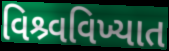
વિશ્ર્વવિખ્યાત